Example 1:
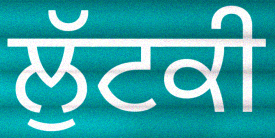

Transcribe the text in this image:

ਲੁੱਟਕੀ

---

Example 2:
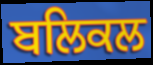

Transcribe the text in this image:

ਬਲਿਕਲ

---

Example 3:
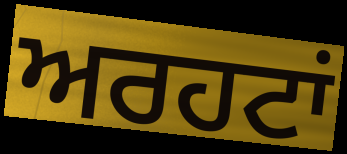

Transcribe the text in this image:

ਅਰਹਟਾਂ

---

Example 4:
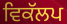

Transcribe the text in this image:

ਵਿਕੱਲਪ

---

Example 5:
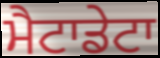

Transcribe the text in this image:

ਮੈਟਾਡੇਟਾ